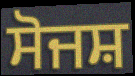
ਸੋਜਸ਼